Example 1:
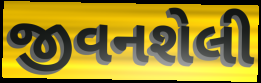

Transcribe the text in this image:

જીવનશેલી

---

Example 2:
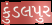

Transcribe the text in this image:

કુંડલપુર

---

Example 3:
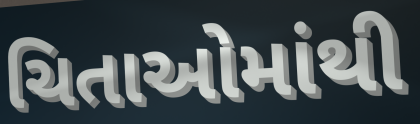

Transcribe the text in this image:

ચિતાઓમાંથી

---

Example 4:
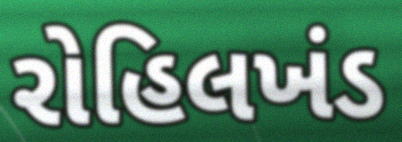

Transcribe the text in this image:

રોહિલખંડ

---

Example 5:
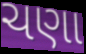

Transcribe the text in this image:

ચણા